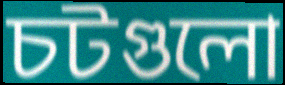
চটগুলো